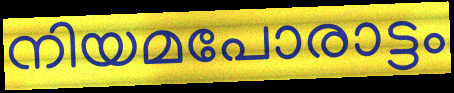
നിയമപോരാട്ടം